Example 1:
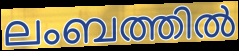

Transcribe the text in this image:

ലംബത്തിൽ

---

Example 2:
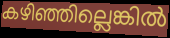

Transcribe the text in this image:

കഴിഞ്ഞില്ലെങ്കിൽ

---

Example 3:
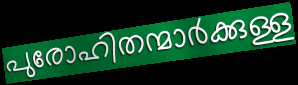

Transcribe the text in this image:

പുരോഹിതന്മാർക്കുള്ള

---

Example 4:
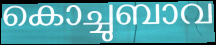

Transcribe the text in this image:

കൊച്ചുബാവ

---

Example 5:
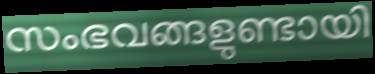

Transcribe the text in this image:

സംഭവങ്ങളുണ്ടായി